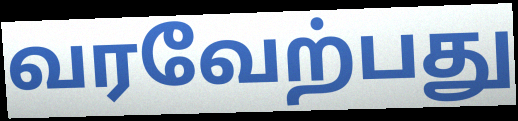
வரவேற்பது